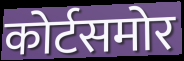
कोर्टसमोर